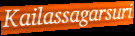
Kailassagarsuri